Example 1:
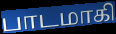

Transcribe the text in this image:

பாடமாகி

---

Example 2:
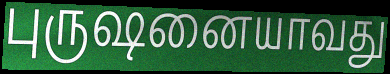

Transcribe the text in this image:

புருஷனையாவது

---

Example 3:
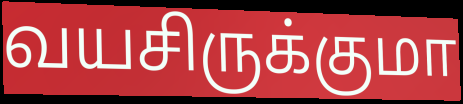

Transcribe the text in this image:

வயசிருக்குமா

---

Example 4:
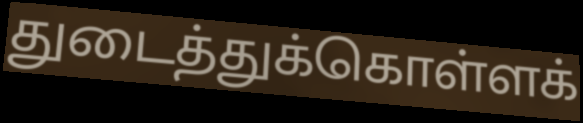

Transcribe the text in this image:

துடைத்துக்கொள்ளக்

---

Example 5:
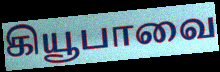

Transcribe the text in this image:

கியூபாவை